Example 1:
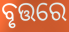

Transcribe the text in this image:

ବୃତ୍ତରେ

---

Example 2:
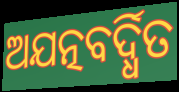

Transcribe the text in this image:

ଅଯତ୍ନବର୍ଦ୍ଧିତ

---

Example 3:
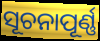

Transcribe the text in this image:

ସୂଚନାପୂର୍ଣ୍ଣ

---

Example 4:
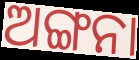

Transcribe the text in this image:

ଅଙ୍ଗନା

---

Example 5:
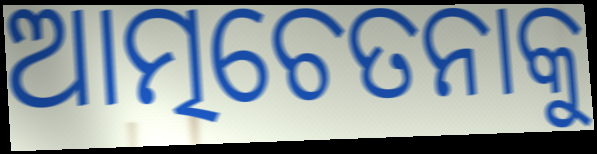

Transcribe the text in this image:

ଆତ୍ମଚେତନାକୁ